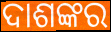
ଦାଶଙ୍କର